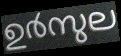
ഉർസുല